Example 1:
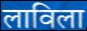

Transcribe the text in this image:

लाविला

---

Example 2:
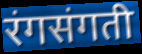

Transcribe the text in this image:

रंगसंगती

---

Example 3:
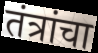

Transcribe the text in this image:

तंत्रांचा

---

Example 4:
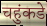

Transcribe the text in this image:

चहुंकडे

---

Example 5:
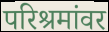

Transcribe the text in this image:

परिश्रमांवर